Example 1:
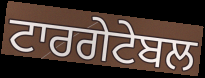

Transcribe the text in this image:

ਟਾਰਗੇਟੇਬਲ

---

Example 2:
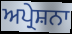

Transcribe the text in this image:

ਅਪ੍ਰੇਸ਼ਨਾ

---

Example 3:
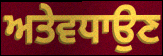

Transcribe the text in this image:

ਅਤੇਵਧਾਉਣ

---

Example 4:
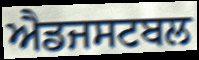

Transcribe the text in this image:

ਐਡਜਸਟਬਲ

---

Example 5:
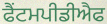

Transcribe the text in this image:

ਫੈਂਟਮਪੀਡੀਐਫ